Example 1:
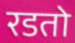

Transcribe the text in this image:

रडतो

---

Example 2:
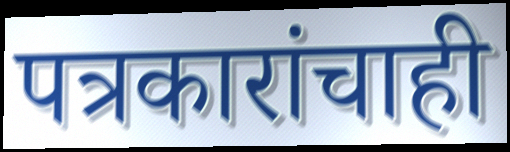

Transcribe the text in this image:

पत्रकारांचाही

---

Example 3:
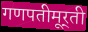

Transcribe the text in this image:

गणपतीमूर्ती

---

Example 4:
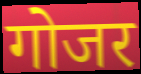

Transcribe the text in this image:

गोजर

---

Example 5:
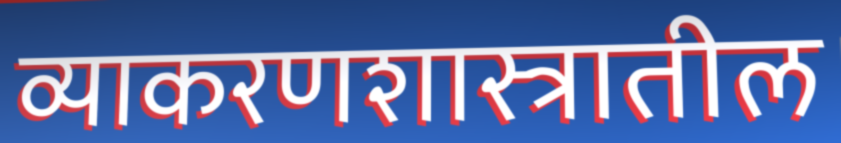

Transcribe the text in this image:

व्याकरणशास्त्रातील